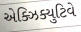
એક્ઝિક્યુટિવે